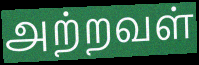
அற்றவள்